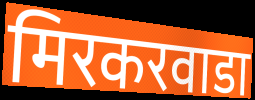
मिरकरवाडा